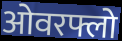
ओवरफ्लो